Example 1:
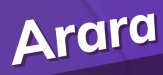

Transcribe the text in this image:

Arara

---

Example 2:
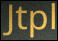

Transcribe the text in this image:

Jtpl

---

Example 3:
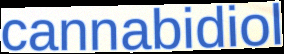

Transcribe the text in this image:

cannabidiol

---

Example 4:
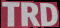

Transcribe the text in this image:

TRD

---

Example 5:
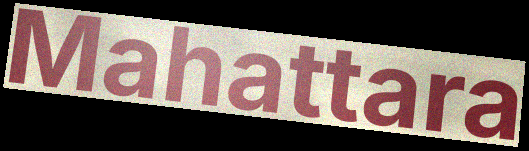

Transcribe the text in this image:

Mahattara